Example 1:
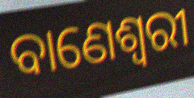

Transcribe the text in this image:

ବାଣେଶ୍ୱରୀ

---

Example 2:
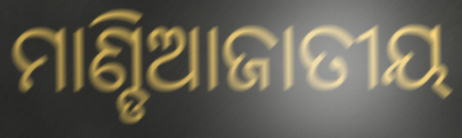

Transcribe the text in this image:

ମାଣ୍ଡିଆଜାତୀୟ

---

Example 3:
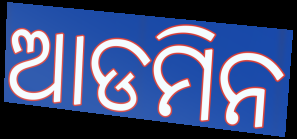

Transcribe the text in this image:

ଆଡମିନ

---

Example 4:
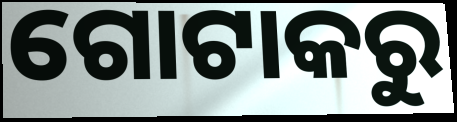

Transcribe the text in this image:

ଗୋଟାକରୁ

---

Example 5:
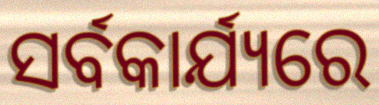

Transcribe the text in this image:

ସର୍ବକାର୍ଯ୍ୟରେ